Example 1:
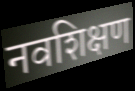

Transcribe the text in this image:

नवशिक्षण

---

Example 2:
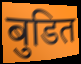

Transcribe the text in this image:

बुडित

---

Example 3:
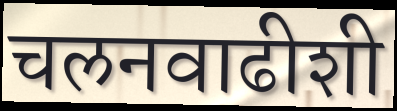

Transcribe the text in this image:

चलनवाढीशी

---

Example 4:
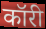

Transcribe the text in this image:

कॉरी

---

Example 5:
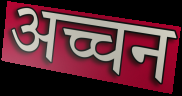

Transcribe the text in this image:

अच्चन